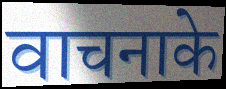
वाचनाके